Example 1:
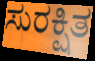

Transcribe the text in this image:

ಸುರಕ್ಷಿತ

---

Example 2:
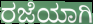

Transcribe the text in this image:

ರಜೆಯಾಗಿ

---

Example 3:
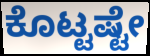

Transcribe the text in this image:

ಕೊಟ್ಟಷ್ಟೇ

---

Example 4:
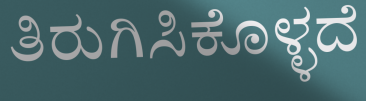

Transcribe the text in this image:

ತಿರುಗಿಸಿಕೊಳ್ಳದೆ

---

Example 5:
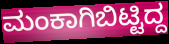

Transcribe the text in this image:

ಮಂಕಾಗಿಬಿಟ್ಟಿದ್ದ